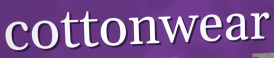
cottonwear